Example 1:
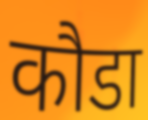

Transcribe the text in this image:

कौडा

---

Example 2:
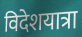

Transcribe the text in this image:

विदेशयात्रा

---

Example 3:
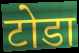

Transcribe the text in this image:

टोडा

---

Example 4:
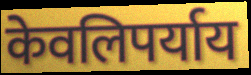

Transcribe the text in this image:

केवलिपर्याय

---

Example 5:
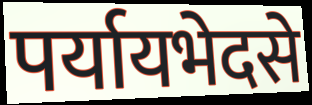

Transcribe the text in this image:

पर्यायभेदसे